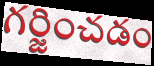
గర్జించడం